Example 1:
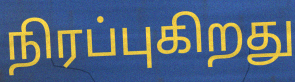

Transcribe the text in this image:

நிரப்புகிறது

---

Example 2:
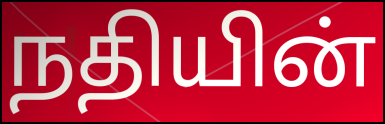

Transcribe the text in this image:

நதியின்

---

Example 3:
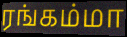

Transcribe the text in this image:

ரங்கம்மா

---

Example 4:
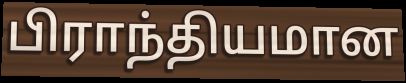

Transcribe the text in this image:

பிராந்தியமான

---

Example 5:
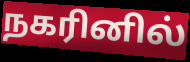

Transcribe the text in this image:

நகரினில்